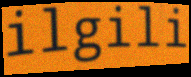
ilgili